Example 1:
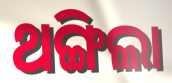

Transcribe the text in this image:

ଥଙ୍ଗିଲା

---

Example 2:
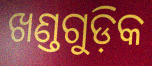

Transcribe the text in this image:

ଖଣ୍ଡଗୁଡ଼ିକ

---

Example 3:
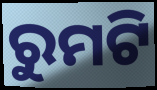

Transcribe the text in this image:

ରୁମଟି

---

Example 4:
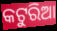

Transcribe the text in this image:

କଟୁରିଆ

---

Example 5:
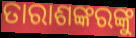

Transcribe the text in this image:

ତାରାଶଙ୍କରଙ୍କୁ